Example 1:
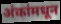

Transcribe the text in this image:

अंकांमधून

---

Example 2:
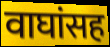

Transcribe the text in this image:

वाघांसह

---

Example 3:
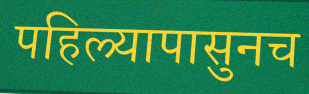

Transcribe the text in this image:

पहिल्यापासुनच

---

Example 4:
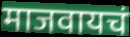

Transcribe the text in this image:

माजवायचं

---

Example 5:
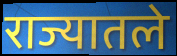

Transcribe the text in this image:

राज्यातले